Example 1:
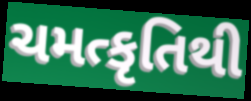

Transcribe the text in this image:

ચમત્કૃતિથી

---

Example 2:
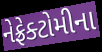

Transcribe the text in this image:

નેફ્રેક્ટોમીના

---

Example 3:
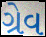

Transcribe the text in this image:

ગ્રેવ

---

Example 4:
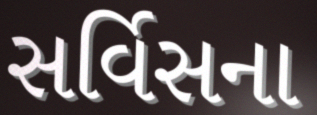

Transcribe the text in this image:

સર્વિસના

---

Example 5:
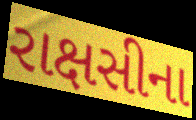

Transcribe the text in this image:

રાક્ષસીના